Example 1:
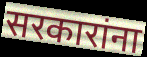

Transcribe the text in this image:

सरकारांना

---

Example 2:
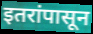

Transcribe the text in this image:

इतरांपासून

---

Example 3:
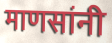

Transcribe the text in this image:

माणसांनी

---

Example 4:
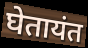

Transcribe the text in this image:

घेतायंत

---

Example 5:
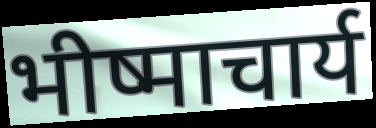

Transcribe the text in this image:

भीष्माचार्य